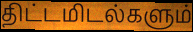
திட்டமிடல்களும்